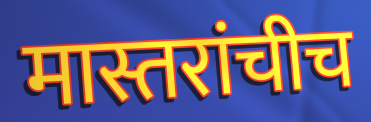
मास्तरांचीच